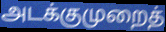
அடக்குமுறைத்